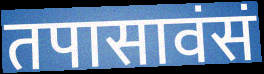
तपासावंसं